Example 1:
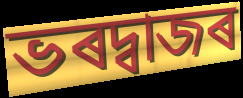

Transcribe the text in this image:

ভৰদ্বাজৰ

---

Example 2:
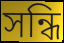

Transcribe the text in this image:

সন্ধি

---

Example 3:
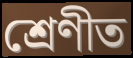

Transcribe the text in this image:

শ্ৰেণীত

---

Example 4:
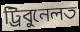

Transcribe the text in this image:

ট্ৰিবুনেলত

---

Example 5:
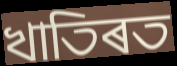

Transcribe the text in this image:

খাতিৰত